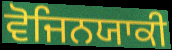
ਵੋਜਿਨਯਾਕੀ